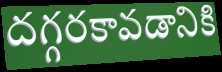
దగ్గరకావడానికి